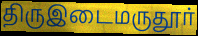
திருஇடைமருதூர்